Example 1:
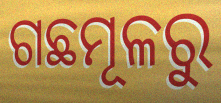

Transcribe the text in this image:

ଗଛମୂଳରୁ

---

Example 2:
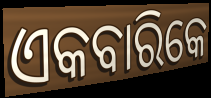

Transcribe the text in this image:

ଏକବାରିକେ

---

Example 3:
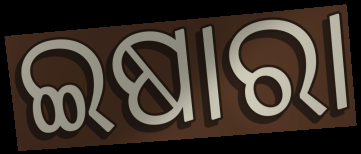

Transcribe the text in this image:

ଇଷାରା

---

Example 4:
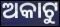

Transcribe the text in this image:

ଅକାଟୁ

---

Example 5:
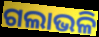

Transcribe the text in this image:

ଗଲାଭଳି